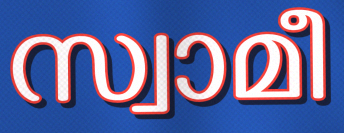
സ്വാമീ